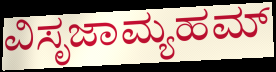
ವಿಸೃಜಾಮ್ಯಹಮ್